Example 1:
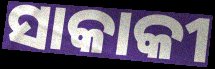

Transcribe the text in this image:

ସାକାକୀ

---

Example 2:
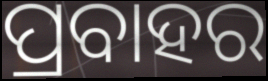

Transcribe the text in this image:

ପ୍ରବାହର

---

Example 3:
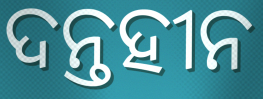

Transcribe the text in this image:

ଦନ୍ତହୀନ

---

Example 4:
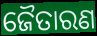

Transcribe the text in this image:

ଜୈତାରଣ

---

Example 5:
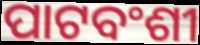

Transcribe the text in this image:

ପାଟବଂଶୀ